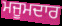
ਮਜੂਮਦਾਰ